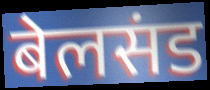
बेलसंड